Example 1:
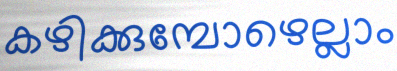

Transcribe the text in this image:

കഴിക്കുമ്പോഴെല്ലാം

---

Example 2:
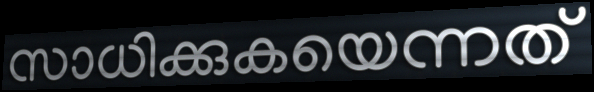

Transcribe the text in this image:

സാധിക്കുകയെന്നത്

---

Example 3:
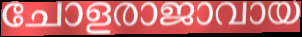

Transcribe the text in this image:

ചോളരാജാവായ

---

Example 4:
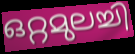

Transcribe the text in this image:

ഒറ്റമുലച്ചി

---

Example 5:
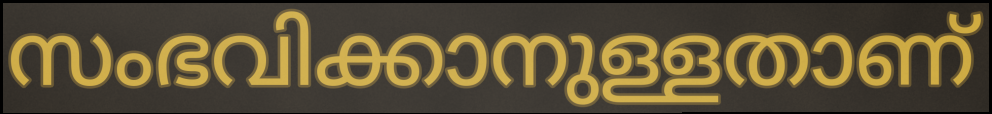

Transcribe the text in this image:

സംഭവിക്കാനുള്ളതാണ്